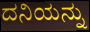
ದನಿಯನ್ನು